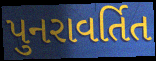
પુનરાવર્તિત